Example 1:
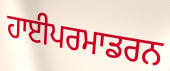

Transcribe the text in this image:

ਹਾਈਪਰਮਾਡਰਨ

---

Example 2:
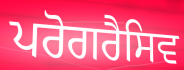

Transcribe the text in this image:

ਪਰੋਗਰੈਸਿਵ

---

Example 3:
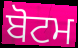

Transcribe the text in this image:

ਬੋਟਮ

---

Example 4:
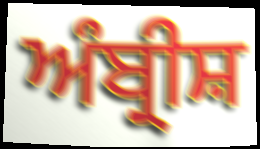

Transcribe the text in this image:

ਅੰਬ੍ਰੀਸ਼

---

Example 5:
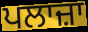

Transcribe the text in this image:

ਪਲਾਜ਼ਾ